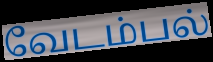
வேடம்பல்